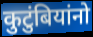
कुटुंबियांनो